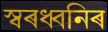
স্বৰধ্বনিৰ